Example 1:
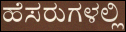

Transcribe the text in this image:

ಹೆಸರುಗಳಲ್ಲಿ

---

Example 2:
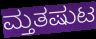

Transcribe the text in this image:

ಮ್ತತಷುಟ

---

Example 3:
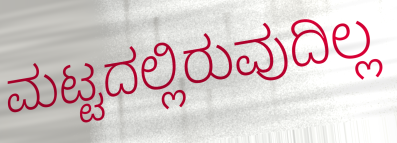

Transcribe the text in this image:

ಮಟ್ಟದಲ್ಲಿರುವುದಿಲ್ಲ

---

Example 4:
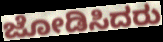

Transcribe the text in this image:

ಜೋಡಿಸಿದರು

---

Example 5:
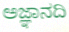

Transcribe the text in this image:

ಅಜ್ಞಾನದಿ